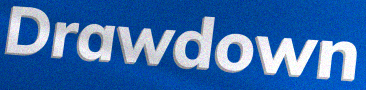
Drawdown